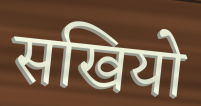
सखियो